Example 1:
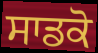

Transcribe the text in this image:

ਸਾਡਕੋ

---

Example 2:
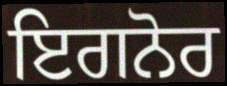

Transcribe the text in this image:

ਇਗਨੋਰ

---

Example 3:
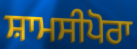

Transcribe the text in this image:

ਸ਼ਾਮਸੀਪੋਰਾ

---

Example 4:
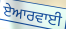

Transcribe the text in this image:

ਏਆਰਵਾਈ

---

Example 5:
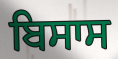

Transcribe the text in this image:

ਬਿਸਾਸ